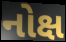
નોક્ષ